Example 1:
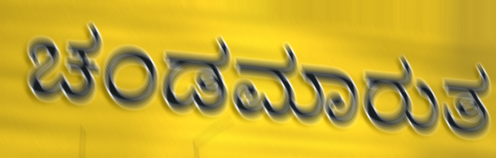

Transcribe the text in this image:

ಚಂಡಮಾರುತ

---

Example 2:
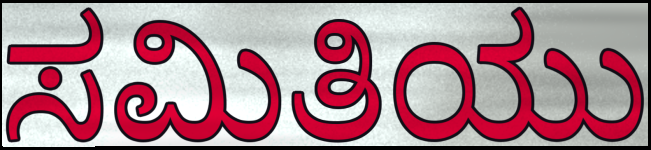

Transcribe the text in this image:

ಸಮಿತಿಯು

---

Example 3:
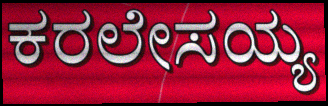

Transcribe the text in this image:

ಕರಲೇಸಯ್ಯ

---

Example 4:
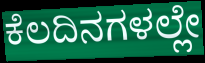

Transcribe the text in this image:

ಕೆಲದಿನಗಳಲ್ಲೇ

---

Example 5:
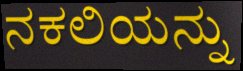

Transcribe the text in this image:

ನಕಲಿಯನ್ನು